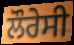
ਲੌਰੇਸੀ